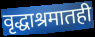
वृद्धाश्रमातही